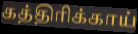
கத்திரிக்காய்